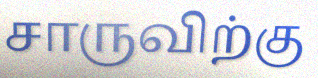
சாருவிற்கு